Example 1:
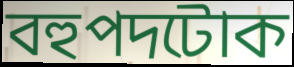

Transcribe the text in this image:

বহুপদটোক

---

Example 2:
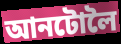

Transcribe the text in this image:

আনটোলৈ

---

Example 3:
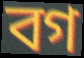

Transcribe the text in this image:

বগ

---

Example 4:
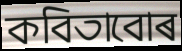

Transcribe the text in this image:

কবিতাবোৰ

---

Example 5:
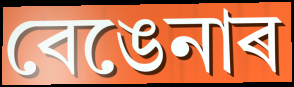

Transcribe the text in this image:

বেঙেনাৰ